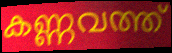
കണ്ണവത്ത്